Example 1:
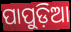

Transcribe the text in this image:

ପାପୁଡ଼ିଆ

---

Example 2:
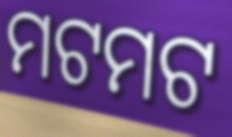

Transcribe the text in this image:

ମଟମଟ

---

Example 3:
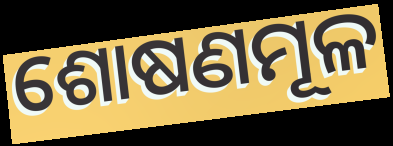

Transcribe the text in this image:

ଶୋଷଣମୂଳ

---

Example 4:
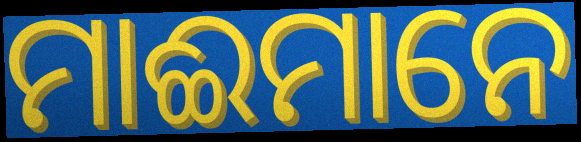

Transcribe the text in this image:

ମାଈମାନେ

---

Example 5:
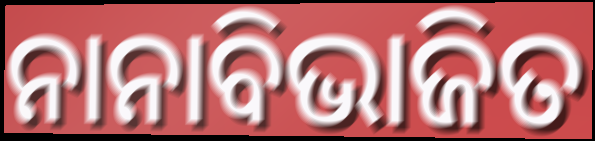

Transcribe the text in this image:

ନାନାବିଭାଜିତ